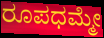
ರೂಪಧಮ್ಮೇ